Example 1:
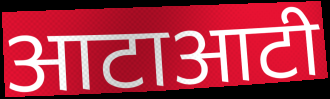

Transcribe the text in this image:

आटाआटी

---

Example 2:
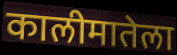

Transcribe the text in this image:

कालीमातेला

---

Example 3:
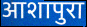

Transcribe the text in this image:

आशापुरा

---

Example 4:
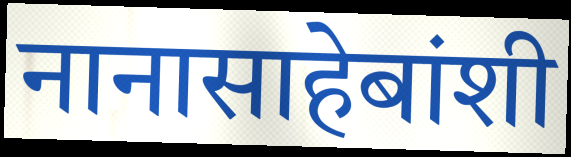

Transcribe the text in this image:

नानासाहेबांशी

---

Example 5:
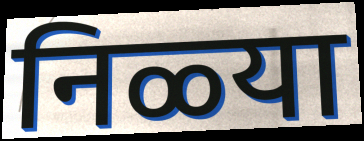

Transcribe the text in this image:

निळ्या